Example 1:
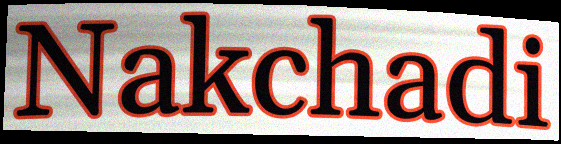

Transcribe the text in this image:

Nakchadi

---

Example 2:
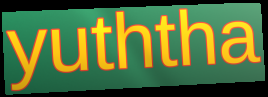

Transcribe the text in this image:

yuththa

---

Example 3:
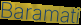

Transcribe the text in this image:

Baramati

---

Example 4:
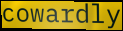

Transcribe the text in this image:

cowardly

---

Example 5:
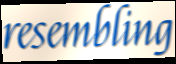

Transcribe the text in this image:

resembling